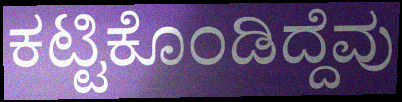
ಕಟ್ಟಿಕೊಂಡಿದ್ದೆವು